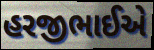
હરજીભાઈએ